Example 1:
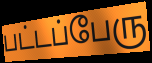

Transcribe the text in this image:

பட்டப்பேரு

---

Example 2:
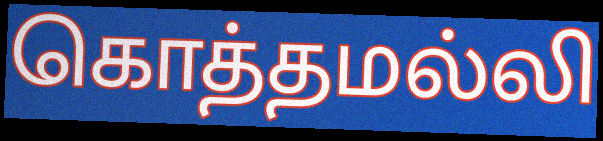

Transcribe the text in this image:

கொத்தமல்லி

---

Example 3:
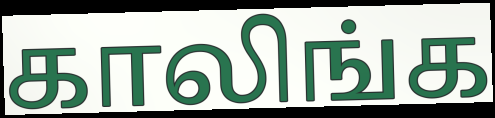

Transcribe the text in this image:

காலிங்க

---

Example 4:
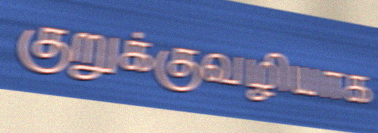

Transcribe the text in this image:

குறுக்குவழியாக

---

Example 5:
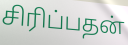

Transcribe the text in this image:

சிரிப்பதன்